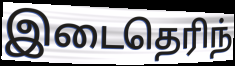
இடைதெரிந்